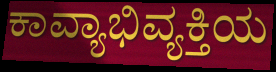
ಕಾವ್ಯಾಭಿವ್ಯಕ್ತಿಯ